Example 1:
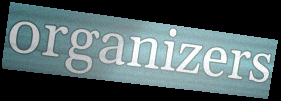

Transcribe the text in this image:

organizers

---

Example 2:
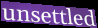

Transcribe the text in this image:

unsettled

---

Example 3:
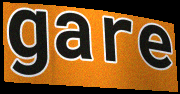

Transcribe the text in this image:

gare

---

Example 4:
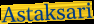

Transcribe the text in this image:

Astaksari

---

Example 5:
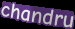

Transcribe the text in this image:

chandru